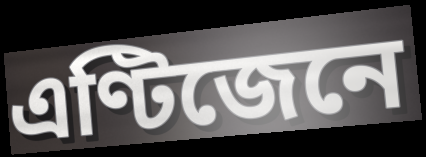
এণ্টিজেনে